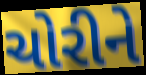
ચોરીને